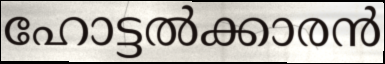
ഹോട്ടൽക്കാരൻ